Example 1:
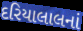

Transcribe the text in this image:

દરિયાલાલનાં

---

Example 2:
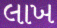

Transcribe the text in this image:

લાખ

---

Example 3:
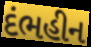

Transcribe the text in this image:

દંભહીન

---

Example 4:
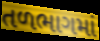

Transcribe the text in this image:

તળભાગમાં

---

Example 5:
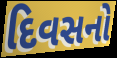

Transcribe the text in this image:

દિવસનો